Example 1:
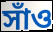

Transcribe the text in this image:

সাঁও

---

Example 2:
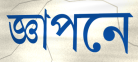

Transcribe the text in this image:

জ্ঞাপনে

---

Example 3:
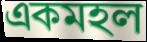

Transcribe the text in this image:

একমহল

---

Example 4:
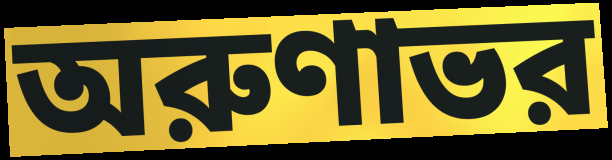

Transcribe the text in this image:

অরুণাভর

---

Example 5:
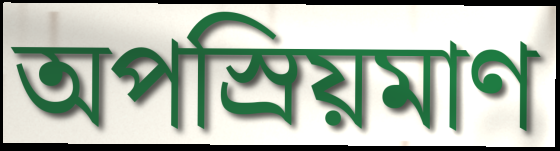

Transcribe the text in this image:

অপস্রিয়মাণ